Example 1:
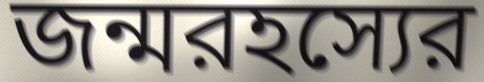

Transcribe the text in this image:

জন্মরহস্যের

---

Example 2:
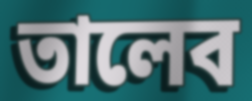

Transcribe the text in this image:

তালেব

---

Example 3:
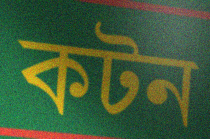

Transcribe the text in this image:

কটন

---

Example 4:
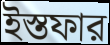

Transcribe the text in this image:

ইস্তফার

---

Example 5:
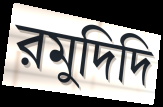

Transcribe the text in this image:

রমুদিদি